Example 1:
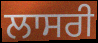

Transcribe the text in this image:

ਲਾਸਰੀ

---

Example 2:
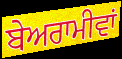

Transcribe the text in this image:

ਬੇਅਰਾਮੀਵਾਂ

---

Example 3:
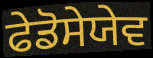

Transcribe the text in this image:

ਫੇਡੋਸੇਯੇਵ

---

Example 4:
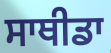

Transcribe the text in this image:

ਸਾਥੀਡਾ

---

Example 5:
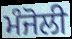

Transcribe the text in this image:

ਮੰਜੋਲੀ